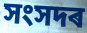
সংসদৰ